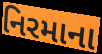
નિરમાના